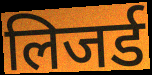
लिजर्ड